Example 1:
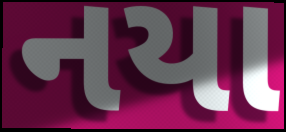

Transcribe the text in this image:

નયા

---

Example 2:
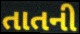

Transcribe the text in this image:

તાતની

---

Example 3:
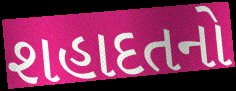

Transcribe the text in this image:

શહાદતનો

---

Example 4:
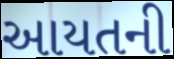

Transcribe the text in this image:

આયતની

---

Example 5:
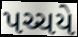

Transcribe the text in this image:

પચ્ચયે